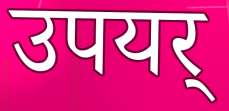
उपयर्